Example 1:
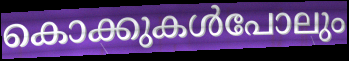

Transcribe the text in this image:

കൊക്കുകൾപോലും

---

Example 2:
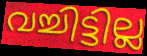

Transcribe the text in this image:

വച്ചിട്ടില്ല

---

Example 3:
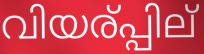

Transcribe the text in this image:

വിയര്പ്പില്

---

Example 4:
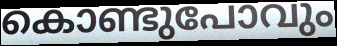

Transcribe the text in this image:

കൊണ്ടുപോവും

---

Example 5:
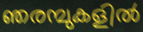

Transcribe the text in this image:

ഞരമ്പുകളിൽ